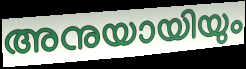
അനുയായിയും